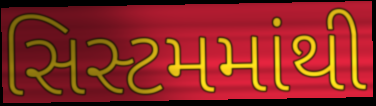
સિસ્ટમમાંથી